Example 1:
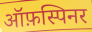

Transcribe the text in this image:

ऑफ़स्पिनर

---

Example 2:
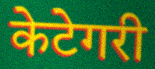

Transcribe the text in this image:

केटेगरी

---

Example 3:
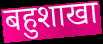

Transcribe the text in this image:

बहुशाखा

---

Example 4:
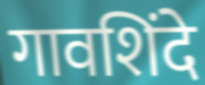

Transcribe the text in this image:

गावशिंदे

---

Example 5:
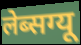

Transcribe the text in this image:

लेब्सग्यू